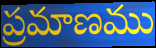
ప్రమాణము